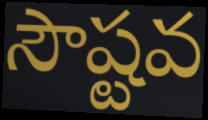
సౌష్టవ